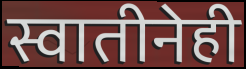
स्वातीनेही